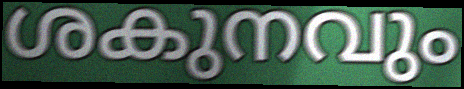
ശകുനവും